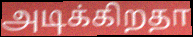
அடிக்கிறதா